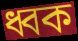
ধ্বক